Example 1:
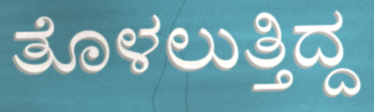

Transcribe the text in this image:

ತೊಳಲುತ್ತಿದ್ದ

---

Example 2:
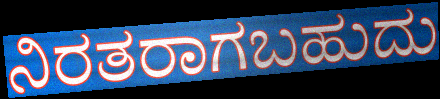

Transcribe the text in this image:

ನಿರತರಾಗಬಹುದು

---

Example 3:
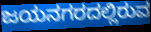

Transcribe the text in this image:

ಜಯನಗರದಲ್ಲಿರುವ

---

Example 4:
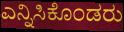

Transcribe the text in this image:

ಎನ್ನಿಸಿಕೊಂಡರು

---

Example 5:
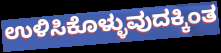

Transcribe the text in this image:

ಉಳಿಸಿಕೊಳ್ಳುವುದಕ್ಕಿಂತ